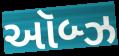
ઑબ્ઝ